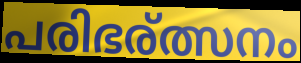
പരിഭര്ത്സനം